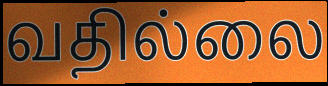
வதில்லை